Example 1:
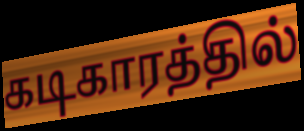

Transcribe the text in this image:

கடிகாரத்தில்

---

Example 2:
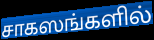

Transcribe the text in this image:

சாகஸங்களில்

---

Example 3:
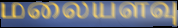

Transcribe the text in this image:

மலையளவு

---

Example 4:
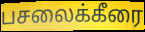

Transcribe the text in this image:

பசலைக்கீரை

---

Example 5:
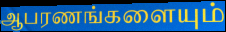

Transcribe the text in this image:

ஆபரணங்களையும்